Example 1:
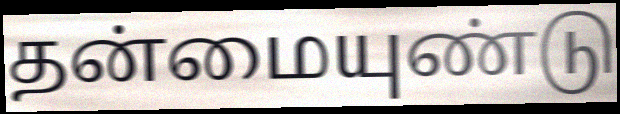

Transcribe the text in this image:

தன்மையுண்டு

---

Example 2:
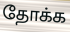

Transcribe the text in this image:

தோக்க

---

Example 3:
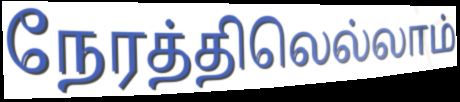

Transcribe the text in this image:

நேரத்திலெல்லாம்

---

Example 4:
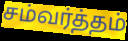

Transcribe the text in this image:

சம்வர்த்தம்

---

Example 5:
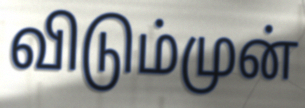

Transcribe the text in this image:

விடும்முன்